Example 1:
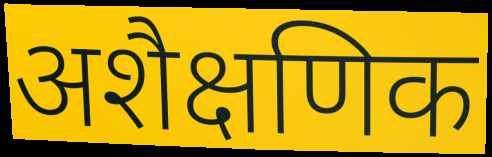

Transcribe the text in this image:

अशैक्षणिक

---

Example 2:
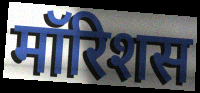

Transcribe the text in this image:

मॉरिशस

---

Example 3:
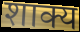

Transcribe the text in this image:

शाक्य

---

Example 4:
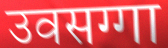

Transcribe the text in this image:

उवसग्गा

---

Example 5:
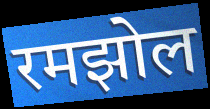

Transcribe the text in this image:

रमझोल